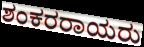
ಶಂಕರರಾಯರು